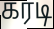
கரடி